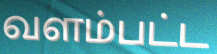
வளம்பட்ட